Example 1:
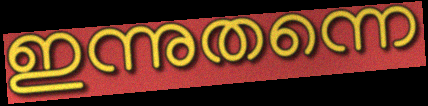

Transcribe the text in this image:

ഇന്നുതന്നെ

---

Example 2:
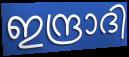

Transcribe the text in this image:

ഇന്ദ്രാദി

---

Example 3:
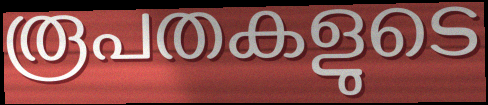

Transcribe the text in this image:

രൂപതകളുടെ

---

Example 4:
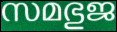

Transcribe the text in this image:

സമഭുജ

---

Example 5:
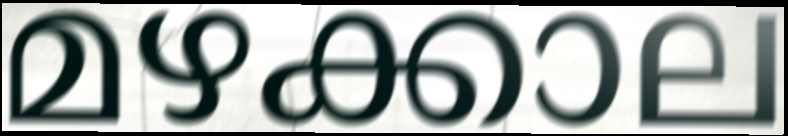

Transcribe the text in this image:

മഴക്കാല